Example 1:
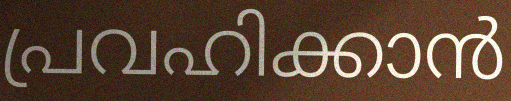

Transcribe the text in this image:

പ്രവഹിക്കാൻ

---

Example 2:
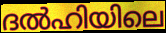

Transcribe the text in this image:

ദൽഹിയിലെ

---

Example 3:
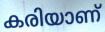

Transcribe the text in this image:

കരിയാണ്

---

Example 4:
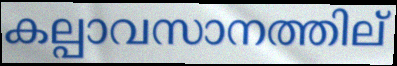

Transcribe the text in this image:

കല്പാവസാനത്തില്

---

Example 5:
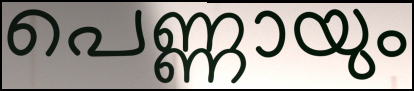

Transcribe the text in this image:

പെണ്ണായും